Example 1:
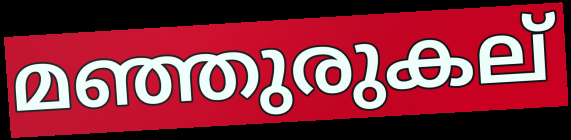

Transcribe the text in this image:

മഞ്ഞുരുകല്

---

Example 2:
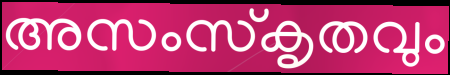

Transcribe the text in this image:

അസംസ്കൃതവും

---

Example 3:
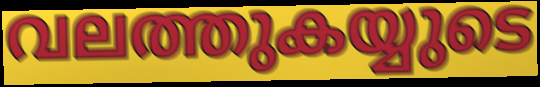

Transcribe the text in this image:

വലത്തുകയ്യുടെ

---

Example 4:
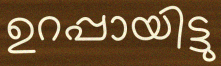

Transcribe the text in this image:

ഉറപ്പായിട്ടു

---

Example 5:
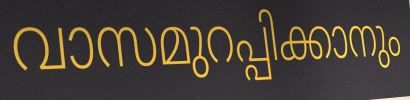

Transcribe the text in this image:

വാസമുറപ്പിക്കാനും